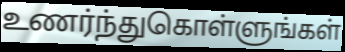
உணர்ந்துகொள்ளுங்கள்